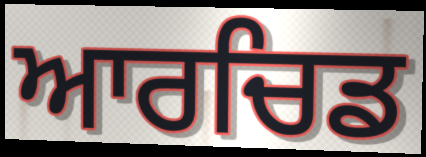
ਆਰਚਿਡ